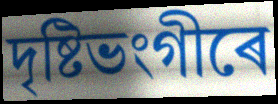
দৃষ্টিভংগীৰে